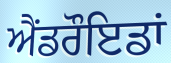
ਐਂਡਰੌਇਡਾਂ